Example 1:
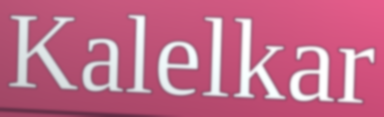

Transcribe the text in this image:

Kalelkar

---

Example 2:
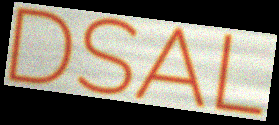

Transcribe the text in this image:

DSAL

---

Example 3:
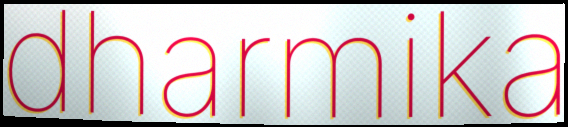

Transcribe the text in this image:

dharmika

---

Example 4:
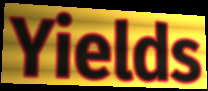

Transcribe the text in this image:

Yields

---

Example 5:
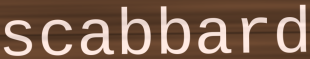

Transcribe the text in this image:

scabbard